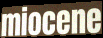
miocene